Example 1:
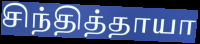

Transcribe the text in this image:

சிந்தித்தாயா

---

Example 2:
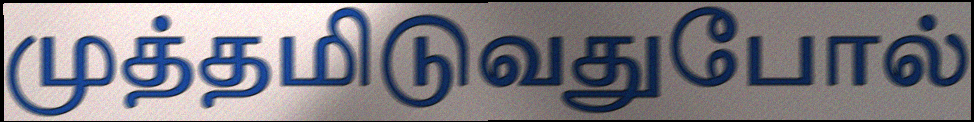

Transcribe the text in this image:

முத்தமிடுவதுபோல்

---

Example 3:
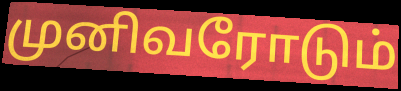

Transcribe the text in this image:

முனிவரோடும்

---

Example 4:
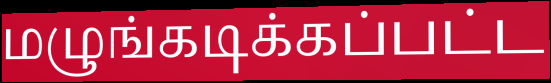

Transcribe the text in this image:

மழுங்கடிக்கப்பட்ட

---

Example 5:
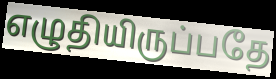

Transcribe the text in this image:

எழுதியிருப்பதே